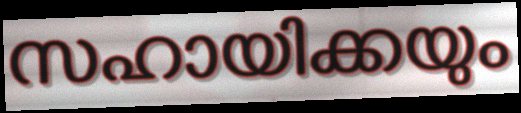
സഹായിക്കയും